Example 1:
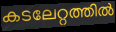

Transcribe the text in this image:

കടലേറ്റത്തിൽ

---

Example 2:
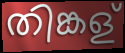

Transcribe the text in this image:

തിങ്കള്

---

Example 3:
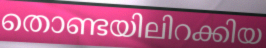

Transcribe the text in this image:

തൊണ്ടയിലിറക്കിയ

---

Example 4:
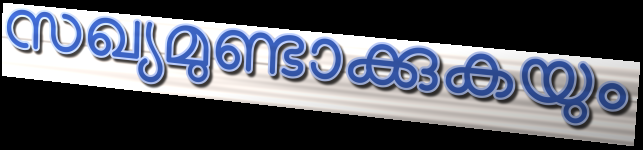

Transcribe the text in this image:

സഖ്യമുണ്ടാക്കുകയും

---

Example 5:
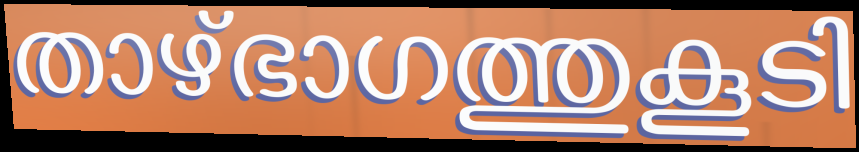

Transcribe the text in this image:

താഴ്ഭാഗത്തുകൂടി